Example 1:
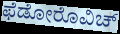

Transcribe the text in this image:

ಫೆಡೋರೊವಿಚ್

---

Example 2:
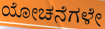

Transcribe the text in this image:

ಯೋಚನೆಗಳೇ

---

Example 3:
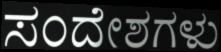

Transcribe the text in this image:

ಸಂದೇಶಗಳು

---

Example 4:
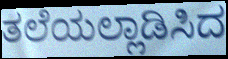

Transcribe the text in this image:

ತಲೆಯಲ್ಲಾಡಿಸಿದ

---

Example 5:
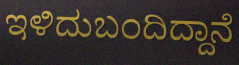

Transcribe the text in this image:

ಇಳಿದುಬಂದಿದ್ದಾನೆ